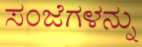
ಸಂಜೆಗಳನ್ನು